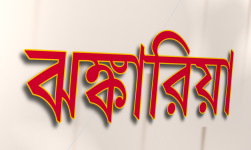
ঝঙ্কারিয়া